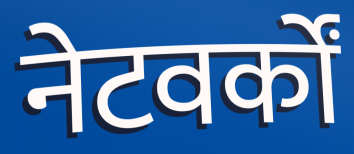
नेटवर्कों